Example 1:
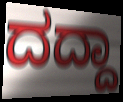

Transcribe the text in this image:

ದದ್ದಾ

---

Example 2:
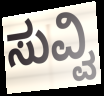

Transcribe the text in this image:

ಸುವ್ವಿ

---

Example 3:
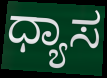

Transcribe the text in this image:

ಧ್ಯಾಸ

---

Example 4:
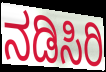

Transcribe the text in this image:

ನಡಿಸಿರಿ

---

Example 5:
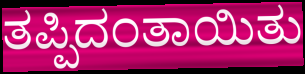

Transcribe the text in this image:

ತಪ್ಪಿದಂತಾಯಿತು